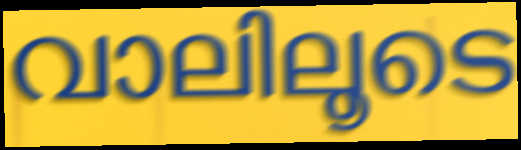
വാലിലൂടെ